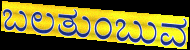
ಬಲತುಂಬುವ